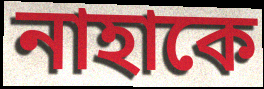
নাহাকে